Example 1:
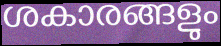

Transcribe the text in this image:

ശകാരങ്ങളും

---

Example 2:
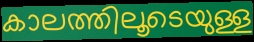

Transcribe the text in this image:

കാലത്തിലൂടെയുള്ള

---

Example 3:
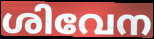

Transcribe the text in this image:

ശിവേന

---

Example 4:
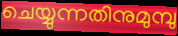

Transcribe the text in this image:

ചെയ്യുന്നതിനുമുമ്പു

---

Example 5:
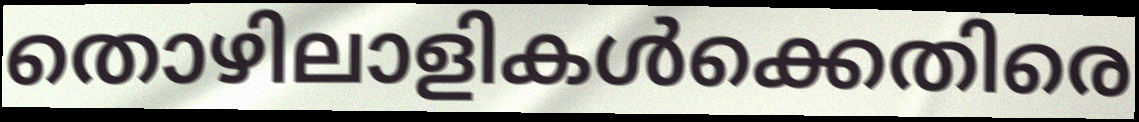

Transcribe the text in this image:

തൊഴിലാളികൾക്കെതിരെ